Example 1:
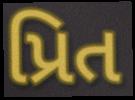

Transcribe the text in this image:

પ્રિત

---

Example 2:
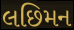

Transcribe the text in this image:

લછિમન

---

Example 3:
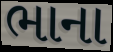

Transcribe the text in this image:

ભાના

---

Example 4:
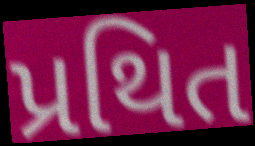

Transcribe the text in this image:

પ્રથિત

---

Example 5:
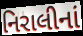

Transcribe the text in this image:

નિરાલીનાં